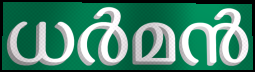
ധർമൻ